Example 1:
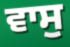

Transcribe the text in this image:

ਵਾਸੁ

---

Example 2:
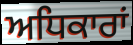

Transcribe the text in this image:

ਅਧਿਕਾਰਾਂ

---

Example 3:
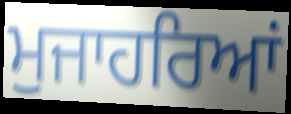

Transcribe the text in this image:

ਮੁਜਾਹਰਿਆਂ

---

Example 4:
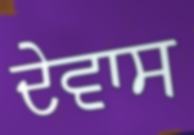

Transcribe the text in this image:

ਦੇਵਾਸ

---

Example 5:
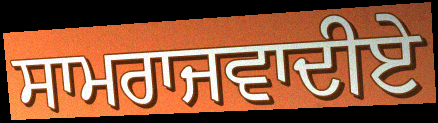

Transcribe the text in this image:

ਸਾਮਰਾਜਵਾਦੀਏ